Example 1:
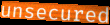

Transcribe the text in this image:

unsecured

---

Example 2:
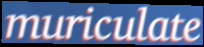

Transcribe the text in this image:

muriculate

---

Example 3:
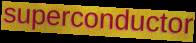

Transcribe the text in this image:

superconductor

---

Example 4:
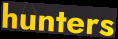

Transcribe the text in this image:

hunters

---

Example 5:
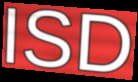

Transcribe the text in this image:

ISD